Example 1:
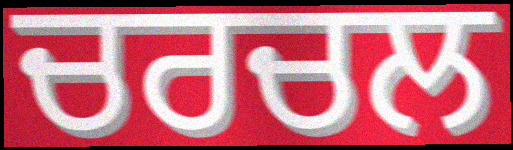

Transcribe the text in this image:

ਚਰਚਲ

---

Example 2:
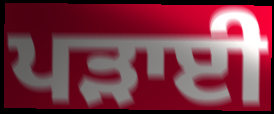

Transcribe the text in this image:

ਪੜਾਈ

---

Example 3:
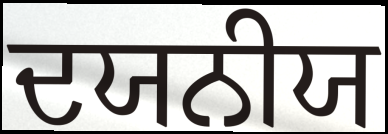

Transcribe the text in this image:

ਦਯਨੀਯ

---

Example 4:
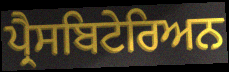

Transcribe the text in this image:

ਪ੍ਰੈਸਬਿਟੇਰਿਅਨ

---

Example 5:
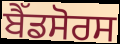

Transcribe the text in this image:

ਬੈੱਡਸੋਰਸ